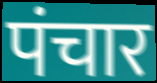
पंचार